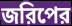
জরিপের